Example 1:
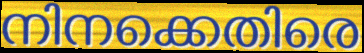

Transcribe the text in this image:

നിനക്കെതിരെ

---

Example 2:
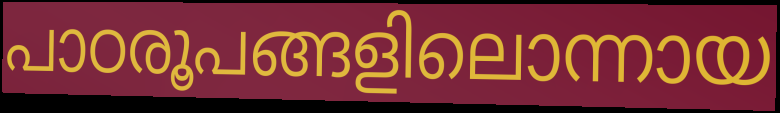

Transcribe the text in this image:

പാഠരൂപങ്ങളിലൊന്നായ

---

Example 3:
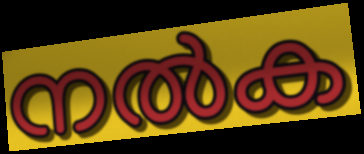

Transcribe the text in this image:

നൽക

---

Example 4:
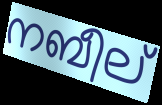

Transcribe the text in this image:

നബീല്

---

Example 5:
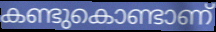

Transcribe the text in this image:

കണ്ടുകൊണ്ടാണ്